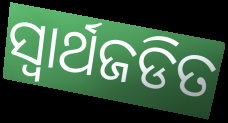
ସ୍ଵାର୍ଥଜଡିତ